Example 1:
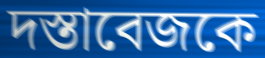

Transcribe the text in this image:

দস্তাবেজকে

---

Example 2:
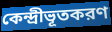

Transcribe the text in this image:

কেন্দ্রীভূতকরণ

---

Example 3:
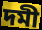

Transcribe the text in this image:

দমী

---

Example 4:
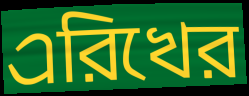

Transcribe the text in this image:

এরিখের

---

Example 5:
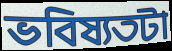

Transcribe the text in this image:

ভবিষ্যতটা